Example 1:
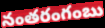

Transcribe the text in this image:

నంతరంగంబు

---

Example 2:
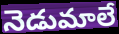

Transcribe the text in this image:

నెడుమాలే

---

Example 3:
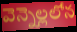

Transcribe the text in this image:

వెన్నెల్లలోన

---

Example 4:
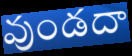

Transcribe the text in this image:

వుండదా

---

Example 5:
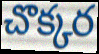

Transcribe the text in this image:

చొక్కర